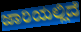
ಜಾರಿಯಲ್ಲಿದೆ